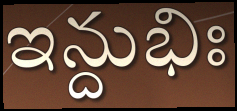
ఇన్దుభిః